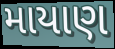
માયાણ